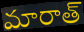
మారాత్